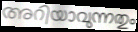
അറിയാവുന്നതും